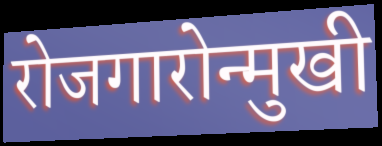
रोजगारोन्मुखी